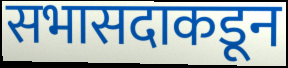
सभासदाकडून